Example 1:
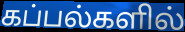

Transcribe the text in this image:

கப்பல்களில்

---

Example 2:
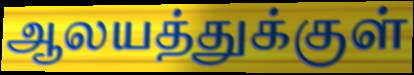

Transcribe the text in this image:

ஆலயத்துக்குள்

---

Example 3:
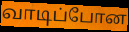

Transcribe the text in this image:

வாடிப்போன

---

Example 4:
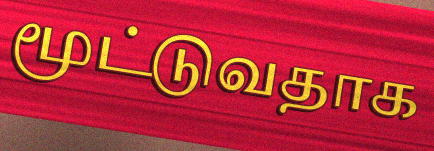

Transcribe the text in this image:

மூட்டுவதாக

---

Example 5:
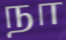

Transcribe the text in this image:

நா